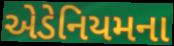
એડેનિયમના